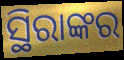
ସ୍ଥିରାଙ୍କର